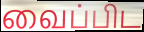
வைப்பிட